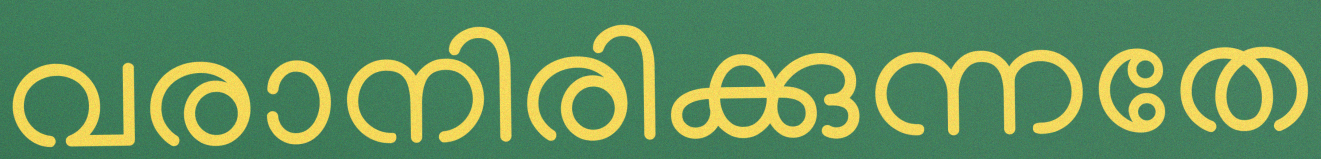
വരാനിരിക്കുന്നതേ